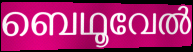
ബെഥൂവേൽ